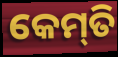
କେମ୍‍ତି